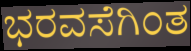
ಭರವಸೆಗಿಂತ